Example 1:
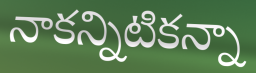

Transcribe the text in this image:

నాకన్నిటికన్నా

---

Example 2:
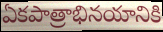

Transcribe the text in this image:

ఏకపాత్రాభినయానికి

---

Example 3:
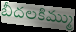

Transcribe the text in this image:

బీదలకిమ్ము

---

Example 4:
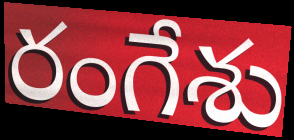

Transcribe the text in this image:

రంగేశు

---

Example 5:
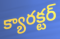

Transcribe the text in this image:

క్యారక్టర్